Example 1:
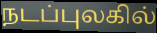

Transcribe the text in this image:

நடப்புலகில்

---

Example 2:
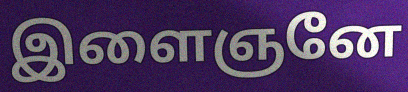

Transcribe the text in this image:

இளைஞனே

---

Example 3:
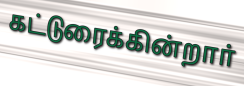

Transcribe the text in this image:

கட்டுரைக்கின்றார்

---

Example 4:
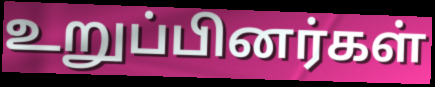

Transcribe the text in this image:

உறுப்பினர்கள்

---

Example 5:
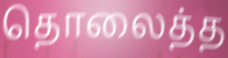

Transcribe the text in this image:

தொலைத்த